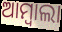
ଆମ୍ବାଲା